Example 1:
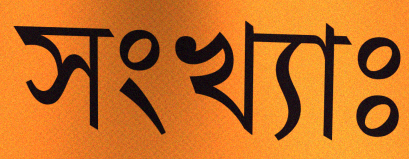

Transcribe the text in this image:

সংখ্যাঃ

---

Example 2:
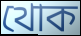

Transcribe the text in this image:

থোক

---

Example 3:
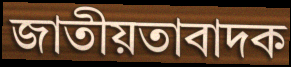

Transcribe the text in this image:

জাতীয়তাবাদক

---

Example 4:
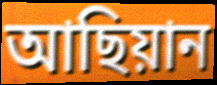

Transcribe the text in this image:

আছিয়ান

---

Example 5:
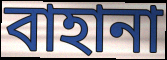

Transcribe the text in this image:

বাহানা